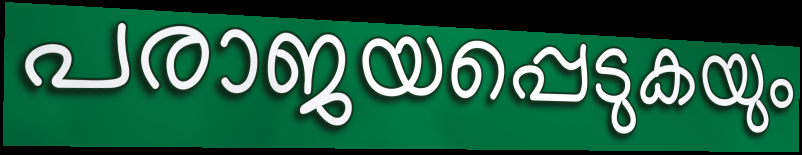
പരാജയപ്പെടുകയും